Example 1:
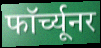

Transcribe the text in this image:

फॉर्च्यूनर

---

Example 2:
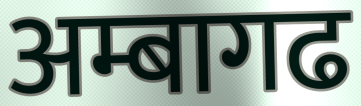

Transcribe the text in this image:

अम्बागढ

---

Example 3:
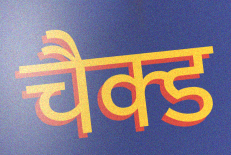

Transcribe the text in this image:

चैक्ड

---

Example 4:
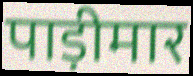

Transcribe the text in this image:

पाड़ीमार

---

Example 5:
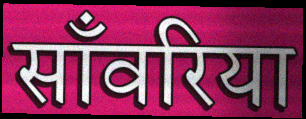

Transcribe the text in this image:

साँवरिया